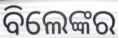
ବିଲେଙ୍କର